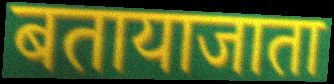
बतायाजाता